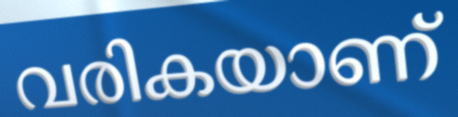
വരികയാണ്